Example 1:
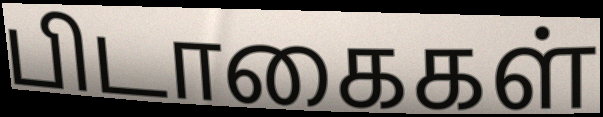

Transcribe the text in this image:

பிடாகைகள்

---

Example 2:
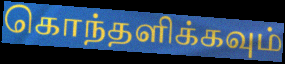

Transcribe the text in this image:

கொந்தளிக்கவும்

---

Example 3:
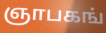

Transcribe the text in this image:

ஞாபகங்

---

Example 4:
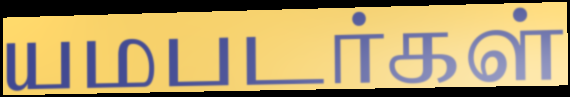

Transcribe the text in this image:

யமபடர்கள்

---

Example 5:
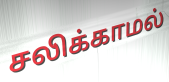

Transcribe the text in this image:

சலிக்காமல்